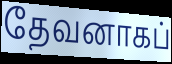
தேவனாகப்